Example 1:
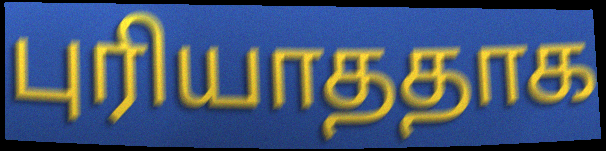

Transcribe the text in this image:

புரியாததாக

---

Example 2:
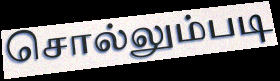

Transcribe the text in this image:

சொல்லும்படி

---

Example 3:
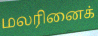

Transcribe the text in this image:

மலரினைக்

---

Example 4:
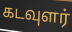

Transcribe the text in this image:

கடவுளர்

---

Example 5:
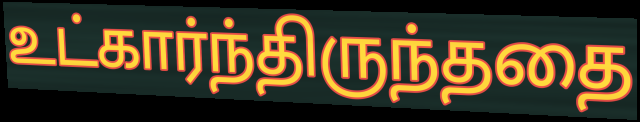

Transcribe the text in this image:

உட்கார்ந்திருந்ததை